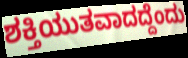
ಶಕ್ತಿಯುತವಾದದ್ದೆಂದು